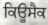
ਕਿਊਸੈਕ